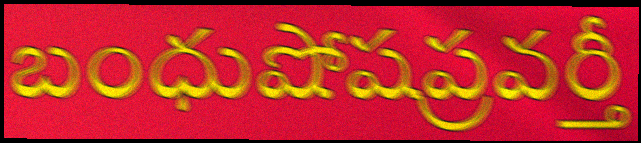
బంధుషోషప్రవర్తీ